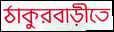
ঠাকুরবাড়ীতে